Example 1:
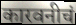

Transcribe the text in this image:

कारवनीचं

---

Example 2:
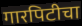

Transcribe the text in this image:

गारपिटीचा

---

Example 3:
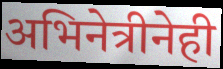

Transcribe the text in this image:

अभिनेत्रीनेही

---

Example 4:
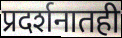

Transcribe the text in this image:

प्रदर्शनातही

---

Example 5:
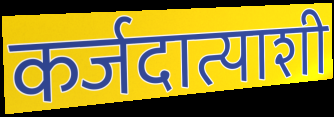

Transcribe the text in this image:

कर्जदात्याशी